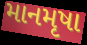
માનમૃષા